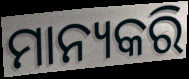
ମାନ୍ୟକରି